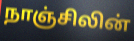
நாஞ்சிலின்